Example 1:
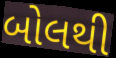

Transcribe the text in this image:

બોલથી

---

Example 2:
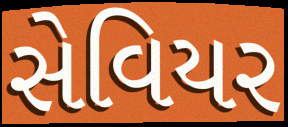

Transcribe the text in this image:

સેવિયર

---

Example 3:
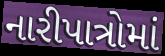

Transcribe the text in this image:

નારીપાત્રોમાં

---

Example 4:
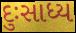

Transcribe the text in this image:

દુઃસાધ્ય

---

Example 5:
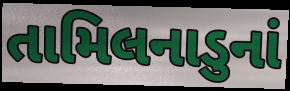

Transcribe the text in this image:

તામિલનાડુનાં